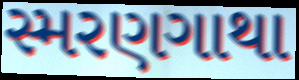
સ્મરણગાથા